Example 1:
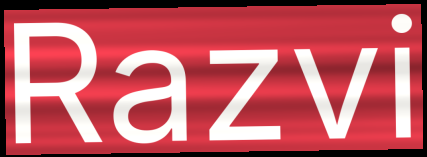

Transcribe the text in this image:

Razvi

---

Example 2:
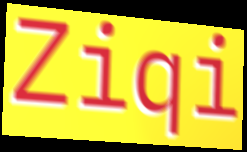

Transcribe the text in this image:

Ziqi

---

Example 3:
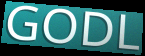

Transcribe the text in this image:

GODL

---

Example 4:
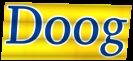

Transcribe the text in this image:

Doog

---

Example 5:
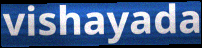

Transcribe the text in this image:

vishayada